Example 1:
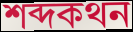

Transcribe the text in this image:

শব্দকথন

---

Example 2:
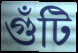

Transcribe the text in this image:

গুঁটি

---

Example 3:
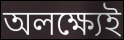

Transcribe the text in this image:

অলক্ষ্যেই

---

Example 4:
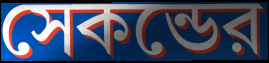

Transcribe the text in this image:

সেকন্ডের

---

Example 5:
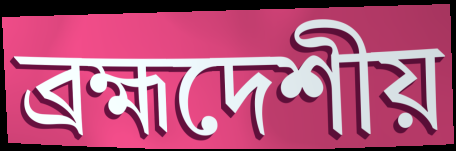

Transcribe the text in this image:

ব্রহ্মদেশীয়